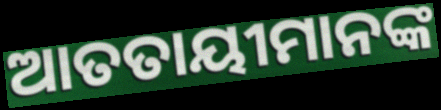
ଆତତାୟୀମାନଙ୍କ